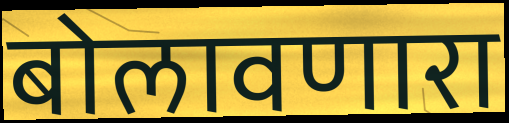
बोलावणारा